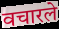
वचारले